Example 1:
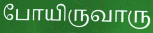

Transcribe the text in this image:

போயிருவாரு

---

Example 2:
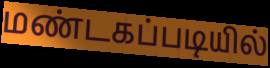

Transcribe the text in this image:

மண்டகப்படியில்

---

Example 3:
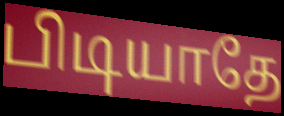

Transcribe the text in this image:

பிடியாதே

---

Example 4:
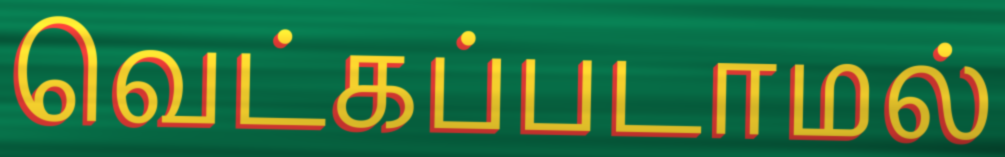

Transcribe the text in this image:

வெட்கப்படாமல்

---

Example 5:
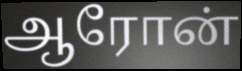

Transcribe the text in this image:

ஆரோன்